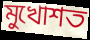
মুখোশত